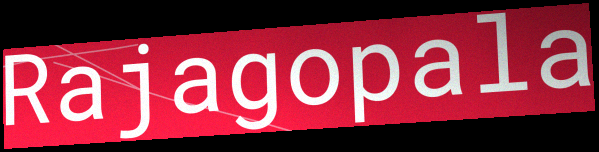
Rajagopala